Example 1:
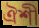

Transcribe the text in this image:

ঐশী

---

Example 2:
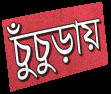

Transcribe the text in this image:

চুঁচুড়ায়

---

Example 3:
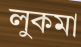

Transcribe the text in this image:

লুকমা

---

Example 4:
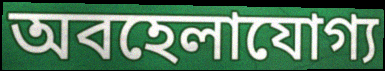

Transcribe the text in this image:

অবহেলাযোগ্য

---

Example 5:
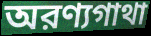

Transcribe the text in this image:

অরণ্যগাথা